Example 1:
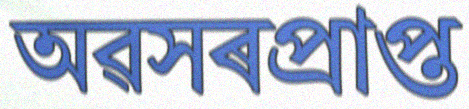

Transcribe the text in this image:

অৱসৰপ্ৰাপ্ত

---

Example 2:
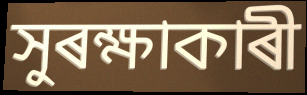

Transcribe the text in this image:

সুৰক্ষাকাৰী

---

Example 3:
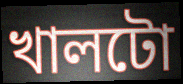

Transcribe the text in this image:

খালটো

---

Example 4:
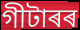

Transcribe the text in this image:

গীটাৰৰ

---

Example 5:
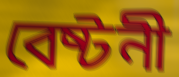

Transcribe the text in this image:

বেষ্টনী